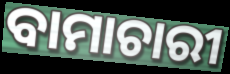
ବାମାଚାରୀ